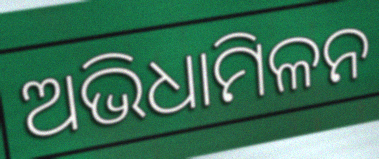
ଅଭିଧାମିଳନ